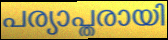
പര്യാപ്തരായി